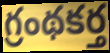
గ్రంథకర్త